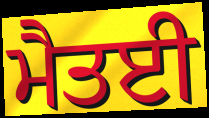
ਮੈਤਈ